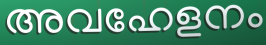
അവഹേളനം